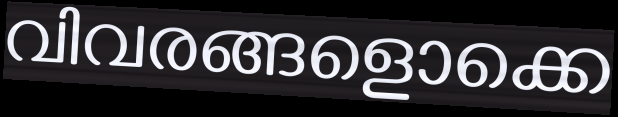
വിവരങ്ങളൊക്കെ